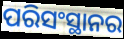
ପରିସଂସ୍ଥାନର